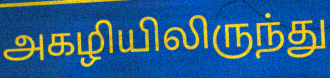
அகழியிலிருந்து